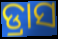
ଡ୍ରାସ